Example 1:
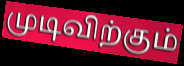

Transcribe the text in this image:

முடிவிற்கும்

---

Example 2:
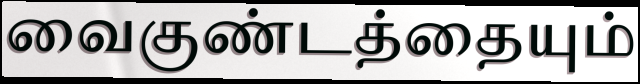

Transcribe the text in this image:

வைகுண்டத்தையும்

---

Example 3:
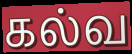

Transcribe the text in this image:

கல்வ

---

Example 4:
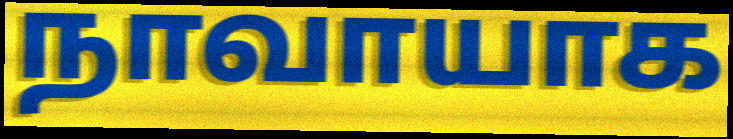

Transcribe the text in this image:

நாவாயாக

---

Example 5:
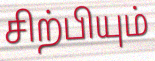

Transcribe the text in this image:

சிற்பியும்